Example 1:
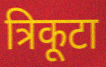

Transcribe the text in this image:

त्रिकूटा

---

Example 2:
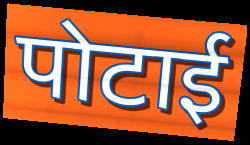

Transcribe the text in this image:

पोटाई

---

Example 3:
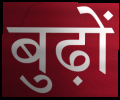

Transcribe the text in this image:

बुढ़ों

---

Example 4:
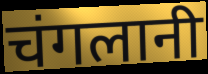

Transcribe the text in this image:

चंगलानी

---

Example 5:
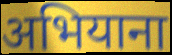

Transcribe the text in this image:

अभियाना